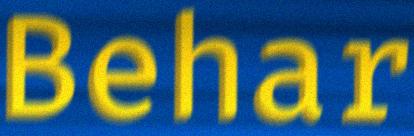
Behar